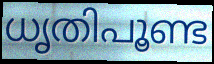
ധൃതിപൂണ്ട